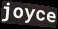
joyce